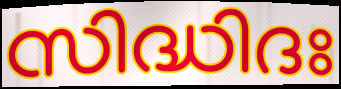
സിദ്ധിദഃ